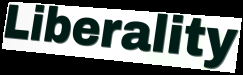
Liberality